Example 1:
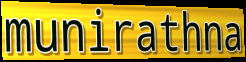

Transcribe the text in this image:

munirathna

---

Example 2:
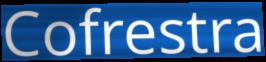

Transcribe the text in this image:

Cofrestra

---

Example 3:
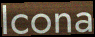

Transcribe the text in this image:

Icona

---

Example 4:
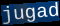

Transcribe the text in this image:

jugad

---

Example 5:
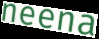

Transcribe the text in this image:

neena